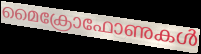
മൈക്രോഫോണുകൾ